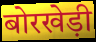
बोरखेड़ी